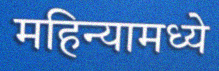
महिन्यामध्ये